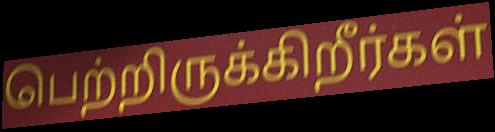
பெற்றிருக்கிறீர்கள்